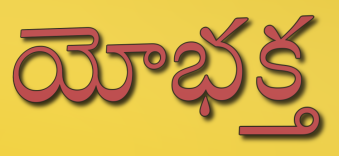
యోభక్త